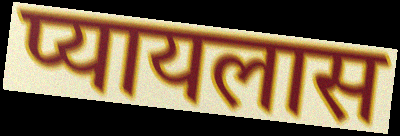
प्यायलास